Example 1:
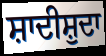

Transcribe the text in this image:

ਸ਼ਾਦੀਸ਼ੁਦਾ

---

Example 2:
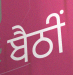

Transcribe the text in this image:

ਬੈਠੀਂ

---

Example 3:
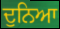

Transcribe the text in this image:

ਦੁਨਿਆ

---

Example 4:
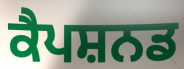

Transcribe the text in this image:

ਕੈਪਸ਼ਨਡ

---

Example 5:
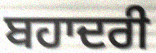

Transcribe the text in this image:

ਬਹਾਦਰੀ